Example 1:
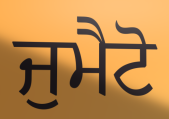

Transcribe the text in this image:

ਜੁਮੈਟੋ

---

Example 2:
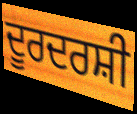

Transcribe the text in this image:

ਦੂਰਦਰਸ਼ੀ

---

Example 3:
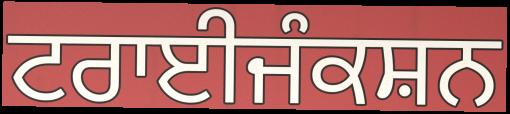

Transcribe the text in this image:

ਟਰਾਈਜੰਕਸ਼ਨ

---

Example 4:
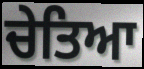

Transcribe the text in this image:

ਚੇਤਿਆ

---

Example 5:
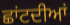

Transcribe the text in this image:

ਛਾਂਟਦੀਆਂ